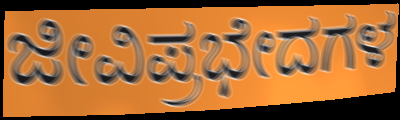
ಜೀವಿಪ್ರಭೇದಗಳ